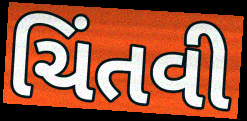
ચિંતવી